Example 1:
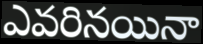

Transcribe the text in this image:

ఎవరినయినా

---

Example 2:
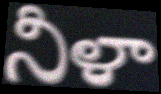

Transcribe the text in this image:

నీళా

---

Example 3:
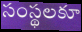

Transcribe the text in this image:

సంస్థలకూ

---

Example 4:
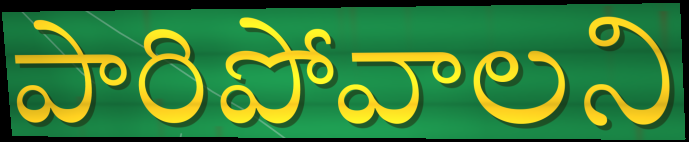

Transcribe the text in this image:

పారిపోవాలని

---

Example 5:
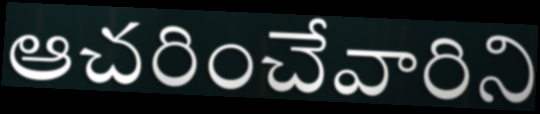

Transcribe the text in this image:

ఆచరించేవారిని